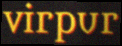
virpur